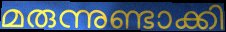
മരുന്നുണ്ടാക്കി